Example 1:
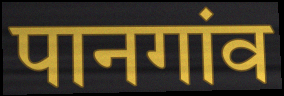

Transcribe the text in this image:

पानगांव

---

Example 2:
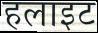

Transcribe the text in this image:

हलाइट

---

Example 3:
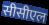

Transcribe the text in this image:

सीसीएल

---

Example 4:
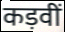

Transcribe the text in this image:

कड़वीं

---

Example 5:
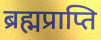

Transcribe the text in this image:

ब्रह्मप्राप्ति